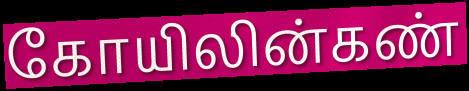
கோயிலின்கண்